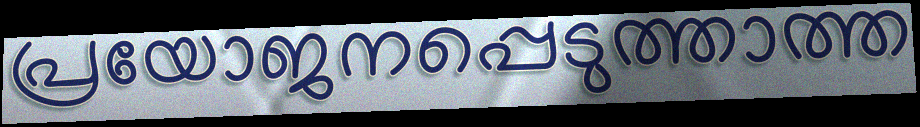
പ്രയോജനപ്പെടുത്താത്ത